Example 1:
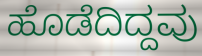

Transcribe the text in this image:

ಹೊಡೆದಿದ್ದವು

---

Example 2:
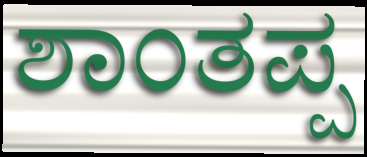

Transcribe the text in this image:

ಶಾಂತಪ್ಪ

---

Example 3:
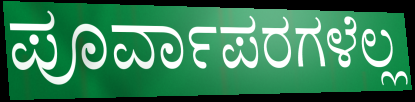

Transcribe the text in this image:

ಪೂರ್ವಾಪರಗಳೆಲ್ಲ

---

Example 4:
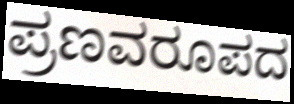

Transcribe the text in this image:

ಪ್ರಣವರೂಪದ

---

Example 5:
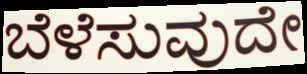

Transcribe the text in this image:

ಬೆಳೆಸುವುದೇ